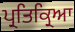
ਪ੍ਰਤਿਕ੍ਰਿਆ